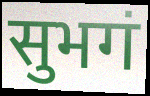
सुभगं